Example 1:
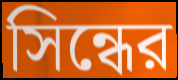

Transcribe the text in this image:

সিন্ধের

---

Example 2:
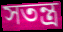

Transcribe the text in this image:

সতন্ত্র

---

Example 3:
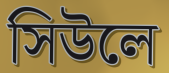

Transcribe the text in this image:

সিউলে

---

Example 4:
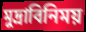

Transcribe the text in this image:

মুদ্রাবিনিময়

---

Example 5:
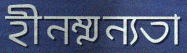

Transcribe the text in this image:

হীনম্মন্যতা